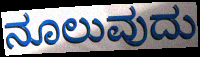
ನೂಲುವುದು